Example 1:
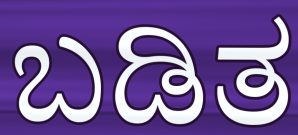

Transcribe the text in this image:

ಬಡಿತ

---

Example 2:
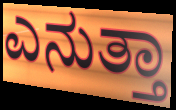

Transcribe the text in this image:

ಎನುತ್ತಾ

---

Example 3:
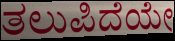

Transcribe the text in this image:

ತಲುಪಿದೆಯೇ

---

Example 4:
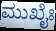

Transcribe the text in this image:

ಮುಖೈಃ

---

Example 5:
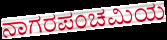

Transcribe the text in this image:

ನಾಗರಪಂಚಮಿಯ